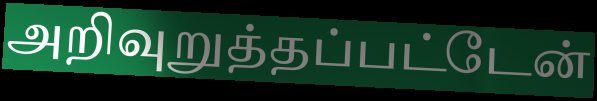
அறிவுறுத்தப்பட்டேன்